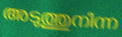
അടുത്തുനിന്ന